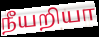
நீயறியா